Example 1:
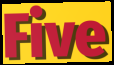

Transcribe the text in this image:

Five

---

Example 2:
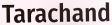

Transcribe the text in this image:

Tarachand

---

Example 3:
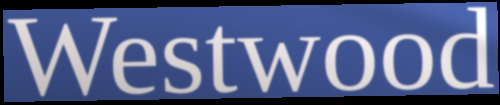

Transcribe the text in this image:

Westwood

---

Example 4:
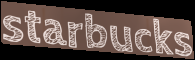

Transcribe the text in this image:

starbucks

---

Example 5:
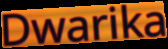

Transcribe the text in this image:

Dwarika